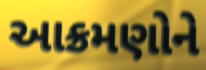
આક્રમણોને